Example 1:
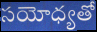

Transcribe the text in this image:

సయోధ్యతో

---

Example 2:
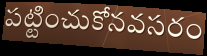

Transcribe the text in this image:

పట్టించుకోనవసరం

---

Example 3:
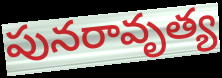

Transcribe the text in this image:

పునరావృత్య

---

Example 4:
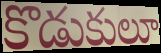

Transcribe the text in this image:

కొడుకులూ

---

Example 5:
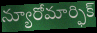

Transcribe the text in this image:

న్యూరోమార్ఫిక్